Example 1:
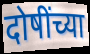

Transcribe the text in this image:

दोषींच्या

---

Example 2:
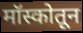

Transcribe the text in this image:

मॉस्कोतून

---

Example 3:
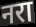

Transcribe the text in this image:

नरा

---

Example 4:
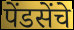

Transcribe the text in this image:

पेंडसेंचे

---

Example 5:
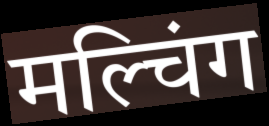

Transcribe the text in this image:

मल्चिंग